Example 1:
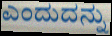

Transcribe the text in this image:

ಎಂದುದನ್ನು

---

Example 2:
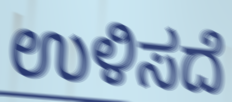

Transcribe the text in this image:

ಉಳಿಸದೆ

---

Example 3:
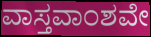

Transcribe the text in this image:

ವಾಸ್ತವಾಂಶವೇ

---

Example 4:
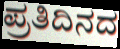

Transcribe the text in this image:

ಪ್ರತಿದಿನದ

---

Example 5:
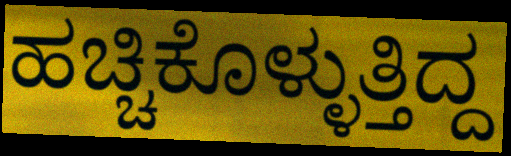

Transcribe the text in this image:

ಹಚ್ಚಿಕೊಳ್ಳುತ್ತಿದ್ದ